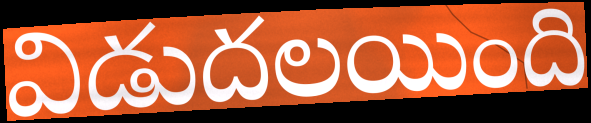
విడుదలయింది